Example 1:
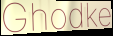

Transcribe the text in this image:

Ghodke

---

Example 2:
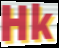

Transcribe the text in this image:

Hk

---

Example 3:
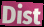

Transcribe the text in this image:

Dist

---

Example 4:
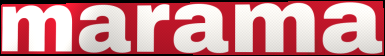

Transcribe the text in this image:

marama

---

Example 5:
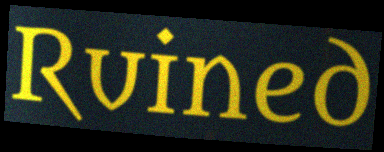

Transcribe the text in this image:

Ruined